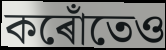
কৰোঁতেও